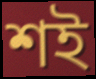
শই